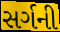
સર્ગની